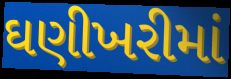
ઘણીખરીમાં